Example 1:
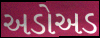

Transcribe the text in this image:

અડોઅડ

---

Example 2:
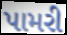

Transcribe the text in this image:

પામરી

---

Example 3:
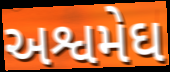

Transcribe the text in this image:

અશ્વમેઘ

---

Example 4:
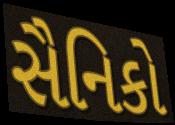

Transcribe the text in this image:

સૈનિકો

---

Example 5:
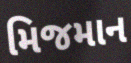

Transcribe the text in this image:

મિજમાન